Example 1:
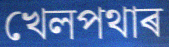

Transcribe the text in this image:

খেলপথাৰ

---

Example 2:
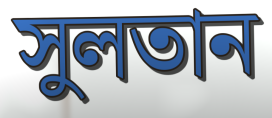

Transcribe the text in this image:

সুলতান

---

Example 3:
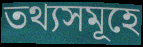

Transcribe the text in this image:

তথ্যসমূহে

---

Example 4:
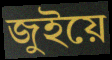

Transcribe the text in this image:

জুইয়ে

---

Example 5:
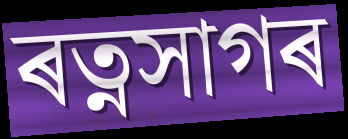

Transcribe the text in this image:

ৰত্নসাগৰ